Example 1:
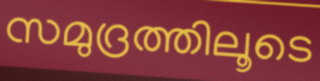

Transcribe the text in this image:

സമുദ്രത്തിലൂടെ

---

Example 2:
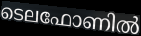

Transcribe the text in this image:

ടെലഫോണിൽ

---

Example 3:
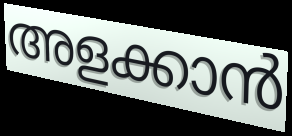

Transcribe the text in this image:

അളക്കാൻ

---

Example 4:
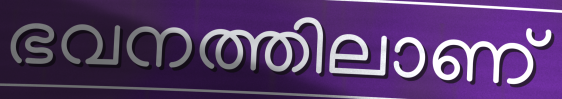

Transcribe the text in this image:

ഭവനത്തിലാണ്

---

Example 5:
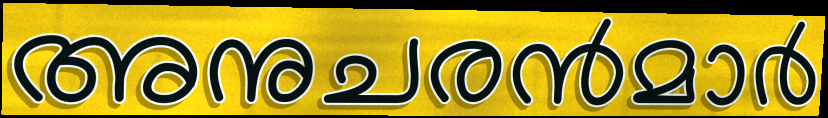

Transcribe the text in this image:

അനുചരൻമാർ